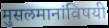
मुसलमानांविषयी